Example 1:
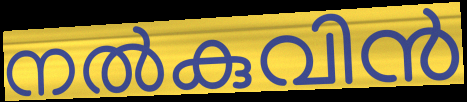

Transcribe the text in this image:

നൽകുവിൻ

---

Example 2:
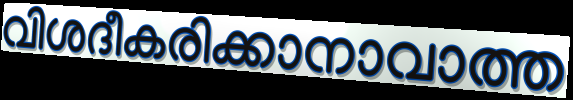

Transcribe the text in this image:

വിശദീകരിക്കാനാവാത്ത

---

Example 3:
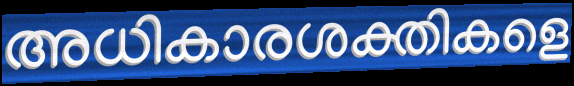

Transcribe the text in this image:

അധികാരശക്തികളെ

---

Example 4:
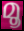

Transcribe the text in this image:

മൂ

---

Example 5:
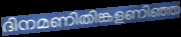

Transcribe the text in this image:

ദിനമണിതിങ്കളണിഞ്ഞ